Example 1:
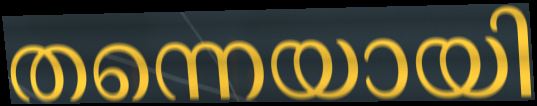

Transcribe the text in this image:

തന്നെയായി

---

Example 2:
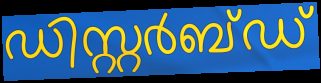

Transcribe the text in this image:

ഡിസ്റ്റർബ്ഡ്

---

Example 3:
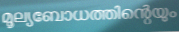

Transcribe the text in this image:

മൂല്യബോധത്തിന്റെയും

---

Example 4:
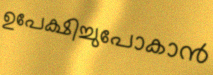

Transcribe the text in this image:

ഉപേക്ഷിച്ചുപോകാൻ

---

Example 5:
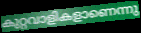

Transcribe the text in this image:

കുറ്റവാളികളാണെന്നു